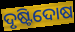
ଦୃଷ୍ଟିଦୋଷ